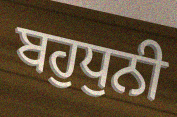
ਬਹੁਧੁਨੀ